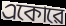
একোৱে